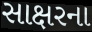
સાક્ષરના